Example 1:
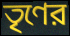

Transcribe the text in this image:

তৃণের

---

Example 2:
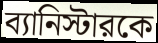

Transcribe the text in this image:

ব্যানিস্টারকে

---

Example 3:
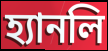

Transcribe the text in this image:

হ্যানলি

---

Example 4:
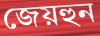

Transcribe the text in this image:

জেয়হুন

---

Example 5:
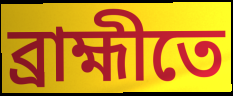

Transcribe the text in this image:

ব্রাহ্মীতে